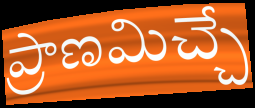
ప్రాణమిచ్చే